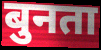
बुनता